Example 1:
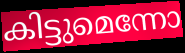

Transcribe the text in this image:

കിട്ടുമെന്നോ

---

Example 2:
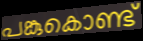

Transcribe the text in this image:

പങ്കുകൊണ്ട്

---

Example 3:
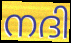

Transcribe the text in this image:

നദി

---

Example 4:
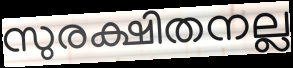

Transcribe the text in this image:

സുരക്ഷിതനല്ല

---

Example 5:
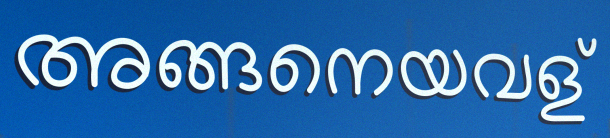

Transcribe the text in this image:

അങ്ങനെയവള്